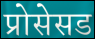
प्रोसेसड